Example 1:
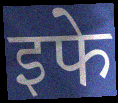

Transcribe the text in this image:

इफे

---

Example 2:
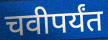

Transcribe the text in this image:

चवीपर्यंत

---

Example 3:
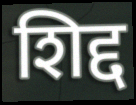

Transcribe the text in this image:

शिद्द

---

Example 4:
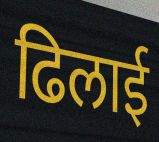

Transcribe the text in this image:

ढिलाई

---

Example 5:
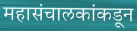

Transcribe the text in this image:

महासंचालकांकडून